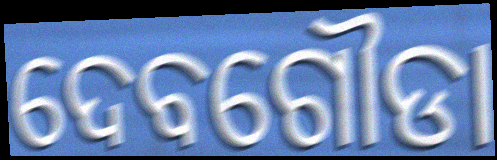
ଦେବଗୌଡା